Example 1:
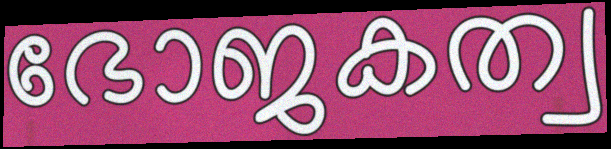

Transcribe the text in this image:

ഭോജകത്വ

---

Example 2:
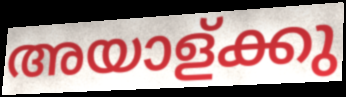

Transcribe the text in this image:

അയാള്ക്കു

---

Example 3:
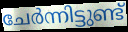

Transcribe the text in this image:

ചേർന്നിട്ടുണ്ട്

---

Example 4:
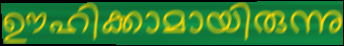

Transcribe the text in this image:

ഊഹിക്കാമായിരുന്നു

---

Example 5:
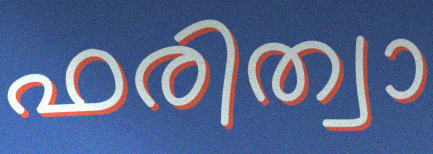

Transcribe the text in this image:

ഫരിത്വാ